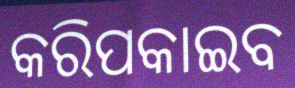
କରିପକାଇବ